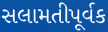
સલામતીપૂર્વક